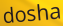
dosha